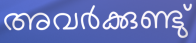
അവർക്കുണ്ടു്